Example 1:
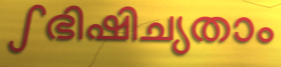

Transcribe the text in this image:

ഽഭിഷിച്യതാം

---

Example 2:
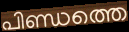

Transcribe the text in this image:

പിണ്ഡത്തെ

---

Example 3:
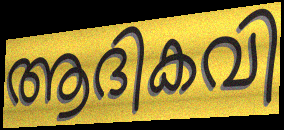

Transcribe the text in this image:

ആദികവി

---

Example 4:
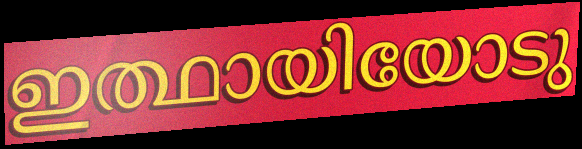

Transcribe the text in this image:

ഇത്ഥായിയോടു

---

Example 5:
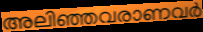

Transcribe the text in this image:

അലിഞ്ഞവരാണവർ